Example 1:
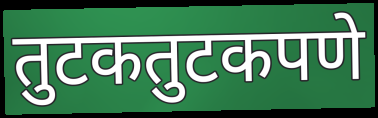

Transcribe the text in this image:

तुटकतुटकपणे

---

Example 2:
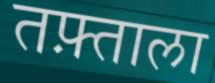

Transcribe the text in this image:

तफ़्ताला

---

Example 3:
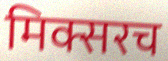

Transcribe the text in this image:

मिक्सरच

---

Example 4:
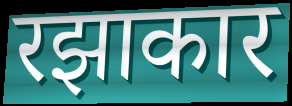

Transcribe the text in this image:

रझाकार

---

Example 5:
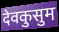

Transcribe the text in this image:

देवकुसुम